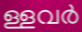
ള്ളവർ